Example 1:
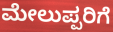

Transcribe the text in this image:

ಮೇಲುಪ್ಪರಿಗೆ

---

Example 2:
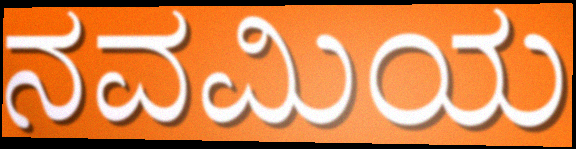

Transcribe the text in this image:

ನವಮಿಯ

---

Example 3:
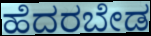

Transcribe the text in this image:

ಹೆದರಬೇಡ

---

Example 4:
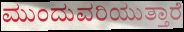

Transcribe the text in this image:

ಮುಂದುವರಿಯುತ್ತಾರೆ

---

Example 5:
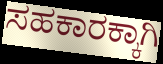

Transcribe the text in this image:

ಸಹಕಾರಕ್ಕಾಗಿ